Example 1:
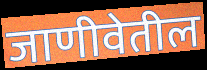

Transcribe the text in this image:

जाणीवेतील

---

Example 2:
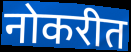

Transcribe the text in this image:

नोकरीत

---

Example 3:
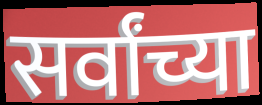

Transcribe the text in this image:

सर्वांच्या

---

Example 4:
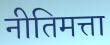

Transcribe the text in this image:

नीतिमत्ता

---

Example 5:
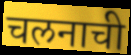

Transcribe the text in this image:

चलनाची